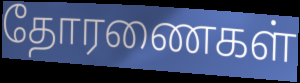
தோரணைகள்